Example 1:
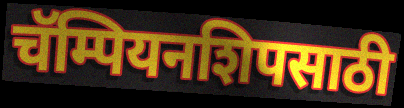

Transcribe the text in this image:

चॅम्पियनशिपसाठी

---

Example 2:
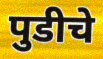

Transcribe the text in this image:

पुडीचे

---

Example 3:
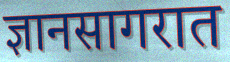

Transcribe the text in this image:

ज्ञानसागरात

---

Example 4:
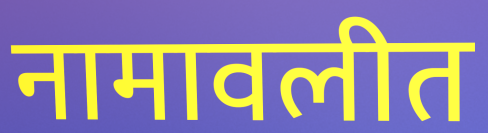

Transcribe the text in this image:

नामावलीत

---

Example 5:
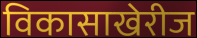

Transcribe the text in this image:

विकासाखेरीज